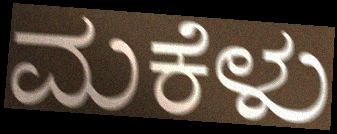
ಮಕೆಳು